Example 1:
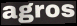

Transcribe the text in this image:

agros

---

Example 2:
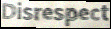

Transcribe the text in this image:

Disrespect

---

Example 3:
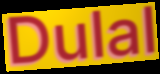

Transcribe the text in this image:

Dulal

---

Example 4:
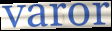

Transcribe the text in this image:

varor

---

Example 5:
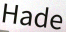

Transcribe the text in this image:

Hade